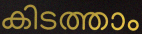
കിടത്താം